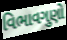
વિભાવગુણો